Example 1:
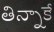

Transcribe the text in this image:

తిన్నాకే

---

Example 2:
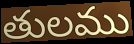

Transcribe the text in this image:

తులము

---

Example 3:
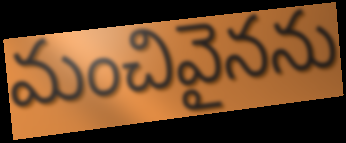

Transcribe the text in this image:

మంచివైనను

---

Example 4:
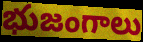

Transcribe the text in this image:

భుజంగాలు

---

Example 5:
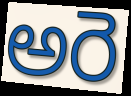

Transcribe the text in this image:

అరె